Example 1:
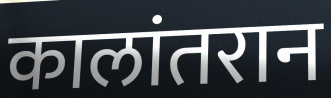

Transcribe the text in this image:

कालांतरान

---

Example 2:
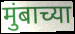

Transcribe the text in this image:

मुंबाच्या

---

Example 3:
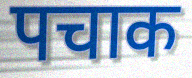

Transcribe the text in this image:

पचाक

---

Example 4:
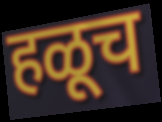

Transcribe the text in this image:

हळूच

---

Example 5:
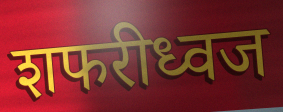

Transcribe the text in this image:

शफरीध्वज